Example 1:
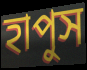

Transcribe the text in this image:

হাপুস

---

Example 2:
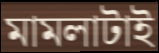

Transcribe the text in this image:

মামলাটাই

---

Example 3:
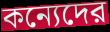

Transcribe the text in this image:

কন্যেদের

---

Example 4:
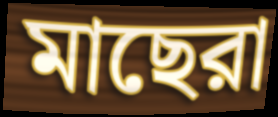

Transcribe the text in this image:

মাছেরা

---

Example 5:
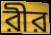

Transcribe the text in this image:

রীর